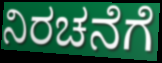
ನಿರಚನೆಗೆ